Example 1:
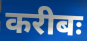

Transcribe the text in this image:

करीबः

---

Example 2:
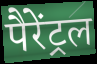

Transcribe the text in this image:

पैरेंट्रल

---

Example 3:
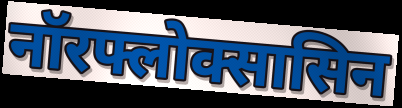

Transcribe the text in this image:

नॉरफ्लोक्सासिन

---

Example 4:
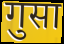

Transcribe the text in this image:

गुसा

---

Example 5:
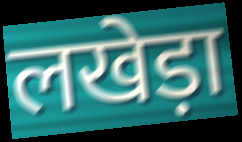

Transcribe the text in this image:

लखेड़ा